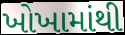
ખોખામાંથી